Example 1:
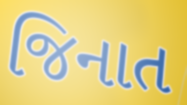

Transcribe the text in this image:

જિનાત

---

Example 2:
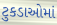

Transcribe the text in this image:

ટુકડાઓમાં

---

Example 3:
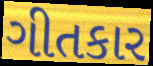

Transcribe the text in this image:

ગીતકાર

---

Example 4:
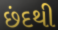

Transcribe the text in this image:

છંદથી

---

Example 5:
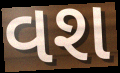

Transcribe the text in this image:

વશ